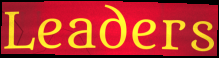
Leaders